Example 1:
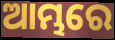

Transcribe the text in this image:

ଆମ୍ଭରେ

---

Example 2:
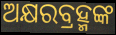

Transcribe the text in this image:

ଅକ୍ଷରବ୍ରହ୍ମଙ୍କ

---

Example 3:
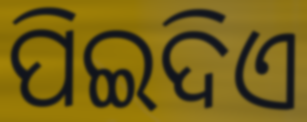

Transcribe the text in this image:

ପିଇଦିଏ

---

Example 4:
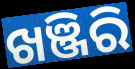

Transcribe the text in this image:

ଖଞ୍ଜିରି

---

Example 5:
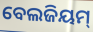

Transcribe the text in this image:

ବେଲଜିୟମ୍